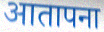
आतापना